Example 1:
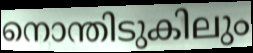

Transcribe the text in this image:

നൊന്തിടുകിലും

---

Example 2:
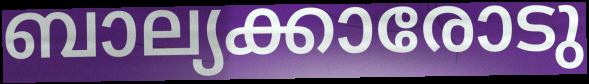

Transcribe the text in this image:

ബാല്യക്കാരോടു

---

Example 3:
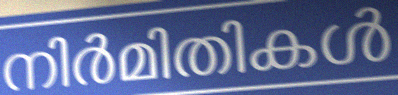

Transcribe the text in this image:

നിർമിതികൾ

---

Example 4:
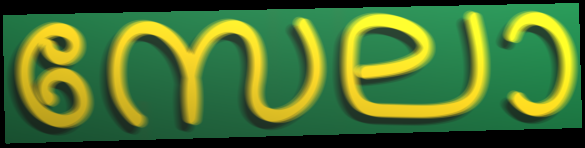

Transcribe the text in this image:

സേലാ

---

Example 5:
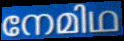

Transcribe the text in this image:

നേമിഥ